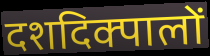
दशदिक्पालों